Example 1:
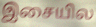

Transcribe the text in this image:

இசையில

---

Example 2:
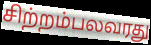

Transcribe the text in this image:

சிற்றம்பலவரது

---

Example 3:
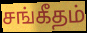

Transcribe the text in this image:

சங்கீதம்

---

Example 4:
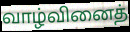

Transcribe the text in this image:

வாழ்வினைத்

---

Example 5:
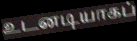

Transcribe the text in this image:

உடனடியாகப்